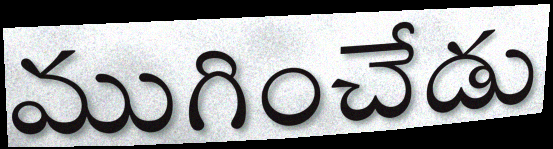
ముగించేడు